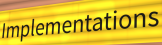
Implementations